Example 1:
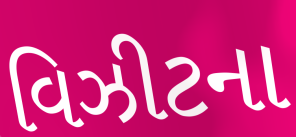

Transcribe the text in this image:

વિઝીટના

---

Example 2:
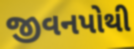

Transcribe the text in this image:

જીવનપોથી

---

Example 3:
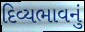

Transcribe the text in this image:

દિવ્યભાવનું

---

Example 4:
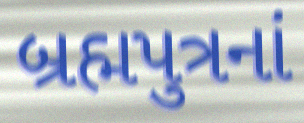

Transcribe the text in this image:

બ્રહ્મપુત્રનાં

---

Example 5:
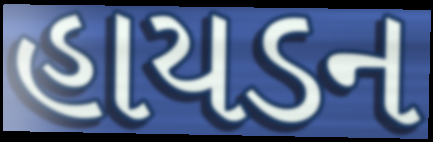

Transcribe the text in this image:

હાયડન